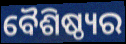
ବୈଶିଷ୍ଠ୍ୟର